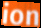
ion